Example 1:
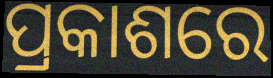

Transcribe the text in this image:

ପ୍ରକାଶରେ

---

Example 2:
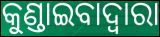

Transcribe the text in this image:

କୁଣ୍ଡାଇବାଦ୍ୱାରା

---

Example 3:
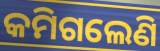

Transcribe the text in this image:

କମିଗଲେଣି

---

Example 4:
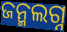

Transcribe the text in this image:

ଜନ୍ମଲଗ୍ନ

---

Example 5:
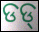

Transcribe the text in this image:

ଡଡ୍